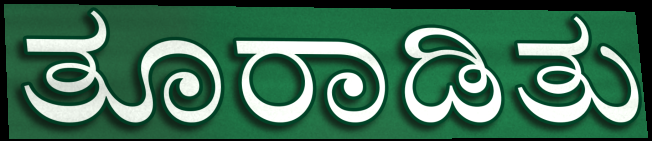
ತೂರಾಡಿತು